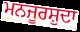
ਮਨਜੂਰਸ਼ੁਦਾ